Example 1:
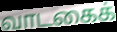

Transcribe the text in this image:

வாடகைக்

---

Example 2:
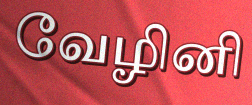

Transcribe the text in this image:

வேழினி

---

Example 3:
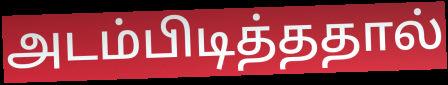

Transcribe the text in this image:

அடம்பிடித்ததால்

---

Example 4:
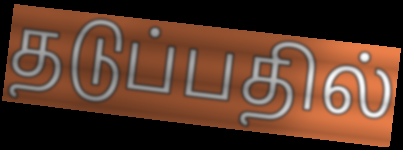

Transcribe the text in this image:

தடுப்பதில்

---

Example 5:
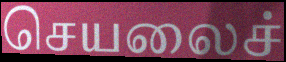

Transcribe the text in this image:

செயலைச்